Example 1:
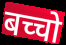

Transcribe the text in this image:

बच्चो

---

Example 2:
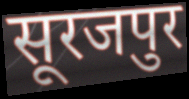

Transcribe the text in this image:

सूरजपुर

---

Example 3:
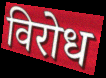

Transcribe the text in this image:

विरोध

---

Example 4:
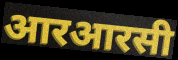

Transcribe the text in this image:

आरआरसी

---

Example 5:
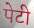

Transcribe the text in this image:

पेटी